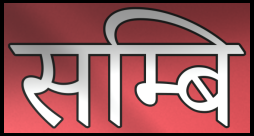
सम्बि